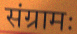
संग्रामः